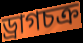
ড্রাগচক্র